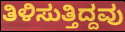
ತಿಳಿಸುತ್ತಿದ್ದವು